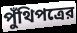
পুঁথিপত্রের